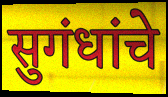
सुगंधांचे